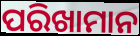
ପରିଖାମାନ